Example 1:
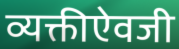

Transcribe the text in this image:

व्यक्तीऐवजी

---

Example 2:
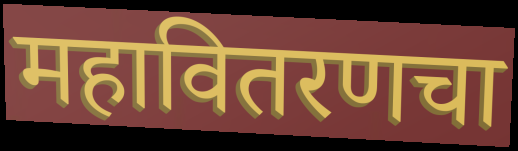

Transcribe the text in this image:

महावितरणचा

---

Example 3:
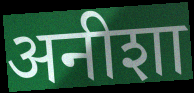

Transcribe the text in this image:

अनीशा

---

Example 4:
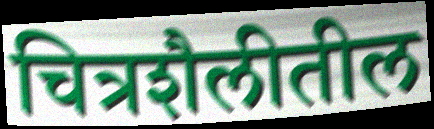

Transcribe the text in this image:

चित्रशैलीतील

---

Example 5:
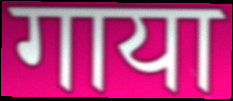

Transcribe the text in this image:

गाया